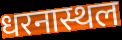
धरनास्थल